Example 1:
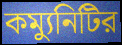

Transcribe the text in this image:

কম্যুনিটির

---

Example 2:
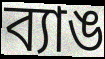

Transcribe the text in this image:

ব্যাঙ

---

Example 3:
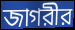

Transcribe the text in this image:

জাগরীর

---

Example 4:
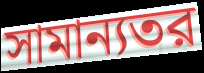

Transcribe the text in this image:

সামান্যতর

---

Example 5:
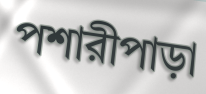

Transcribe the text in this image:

পশারীপাড়া